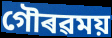
গৌৰৱময়